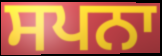
ਸਪਨਾ